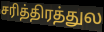
சரித்திரத்துல